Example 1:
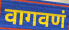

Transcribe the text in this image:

वागवणं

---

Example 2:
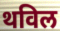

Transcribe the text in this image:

थविल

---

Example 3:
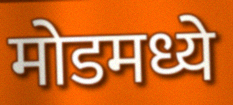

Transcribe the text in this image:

मोडमध्ये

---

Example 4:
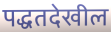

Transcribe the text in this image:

पद्धतदेखील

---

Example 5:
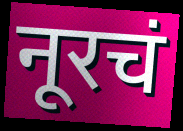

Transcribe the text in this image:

नूरचं